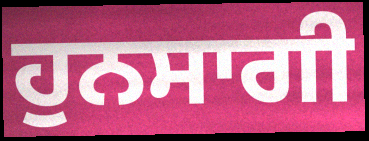
ਹੁਨਸਾਗੀ